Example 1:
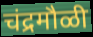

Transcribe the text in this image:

चंद्रमौळी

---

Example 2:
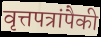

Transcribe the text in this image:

वृत्तपत्रांपैकी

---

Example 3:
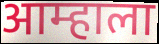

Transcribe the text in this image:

आम्हाला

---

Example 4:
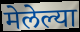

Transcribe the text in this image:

मेलेल्या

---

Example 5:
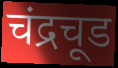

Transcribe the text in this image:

चंद्रचूड